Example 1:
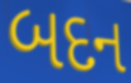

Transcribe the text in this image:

બદન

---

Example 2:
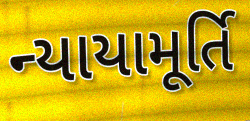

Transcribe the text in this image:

ન્યાયામૂર્તિ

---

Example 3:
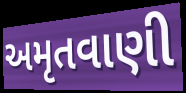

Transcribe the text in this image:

અમૃતવાણી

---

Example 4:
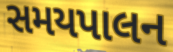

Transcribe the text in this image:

સમયપાલન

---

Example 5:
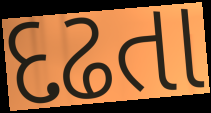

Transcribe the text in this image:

દઢતા